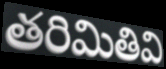
తరిమితివి